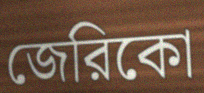
জেরিকো